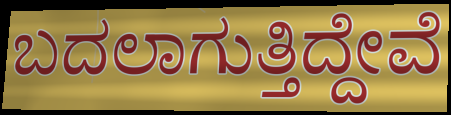
ಬದಲಾಗುತ್ತಿದ್ದೇವೆ